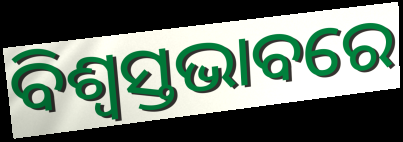
ବିଶ୍ୱସ୍ତଭାବରେ